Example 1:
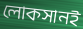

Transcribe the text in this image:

লোকসানই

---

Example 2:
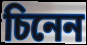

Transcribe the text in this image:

চিনেন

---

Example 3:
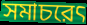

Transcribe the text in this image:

সমাচরেৎ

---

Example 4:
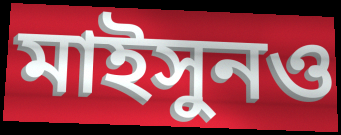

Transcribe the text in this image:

মাইসুনও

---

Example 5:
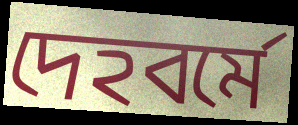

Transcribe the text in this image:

দেহবর্মে